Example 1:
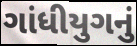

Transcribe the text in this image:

ગાંધીયુગનું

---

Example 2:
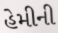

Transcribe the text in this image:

હેમીની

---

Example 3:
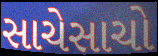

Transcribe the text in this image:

સાચેસાચો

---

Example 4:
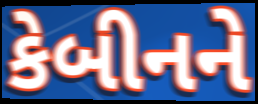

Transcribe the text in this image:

કેબીનને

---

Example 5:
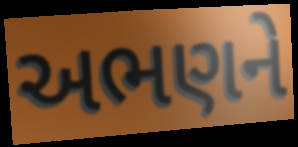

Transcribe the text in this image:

અભણને